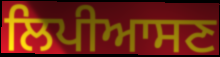
ਲਿਪੀਆਸਣ